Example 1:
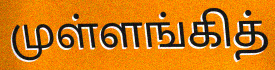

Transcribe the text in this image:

முள்ளங்கித்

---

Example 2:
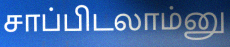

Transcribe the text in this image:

சாப்பிடலாம்னு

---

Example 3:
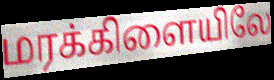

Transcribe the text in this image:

மரக்கிளையிலே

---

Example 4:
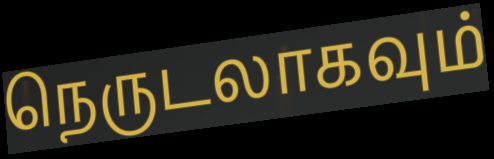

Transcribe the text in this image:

நெருடலாகவும்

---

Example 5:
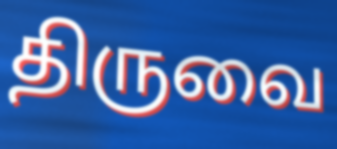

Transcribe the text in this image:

திருவை